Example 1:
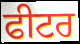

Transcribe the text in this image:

ਫੀਟਰ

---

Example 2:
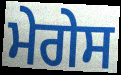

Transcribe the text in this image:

ਮੇਗੇਸ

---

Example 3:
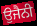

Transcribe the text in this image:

ਉਜੈਨੀ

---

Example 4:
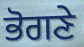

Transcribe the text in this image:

ਭੋਗਣੇ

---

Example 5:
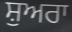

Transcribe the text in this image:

ਸ਼ੁਅਰਾ